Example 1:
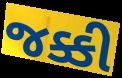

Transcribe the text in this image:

જક્કી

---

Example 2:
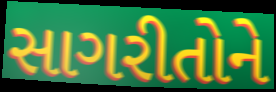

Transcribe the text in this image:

સાગરીતોને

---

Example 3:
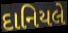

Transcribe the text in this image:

દાનિયલે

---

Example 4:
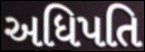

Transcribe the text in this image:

અધિપતિ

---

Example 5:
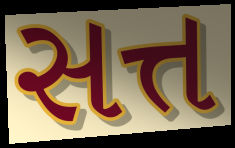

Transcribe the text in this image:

સત્ત